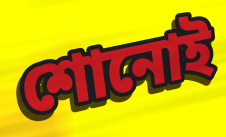
শোনোই